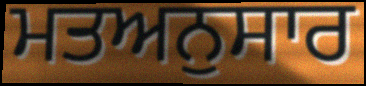
ਮਤਅਨੁਸਾਰ